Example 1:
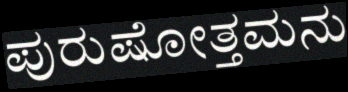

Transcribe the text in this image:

ಪುರುಷೋತ್ತಮನು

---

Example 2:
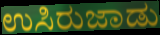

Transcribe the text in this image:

ಉಸಿರುಜಾಡು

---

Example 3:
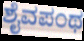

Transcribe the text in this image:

ಶೈವಪಂಥ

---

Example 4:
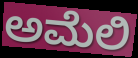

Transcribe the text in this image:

ಅಮೆಲಿ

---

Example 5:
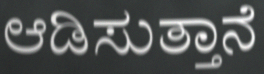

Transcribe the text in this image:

ಆಡಿಸುತ್ತಾನೆ